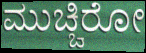
ಮುಚ್ಚಿರೋ